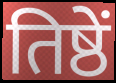
तिष्ठें